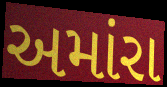
અમાંરા